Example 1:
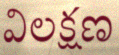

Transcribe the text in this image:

విలక్షణ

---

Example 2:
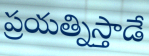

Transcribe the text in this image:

ప్రయత్నిస్తాడే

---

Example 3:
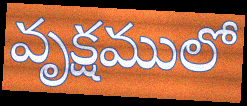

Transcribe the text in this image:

వృక్షములో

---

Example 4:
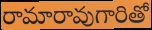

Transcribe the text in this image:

రామారావుగారితో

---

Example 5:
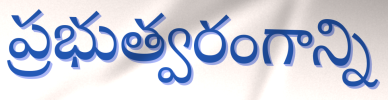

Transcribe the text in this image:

ప్రభుత్వరంగాన్ని